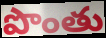
పొంతు